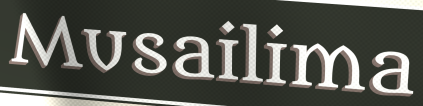
Musailima